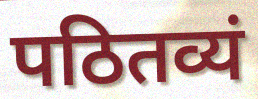
पठितव्यं